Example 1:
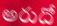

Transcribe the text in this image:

అరుదో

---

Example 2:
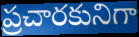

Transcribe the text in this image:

ప్రచారకునిగా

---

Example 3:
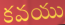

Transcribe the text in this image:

కవయు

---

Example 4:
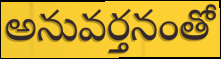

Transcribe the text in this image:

అనువర్తనంతో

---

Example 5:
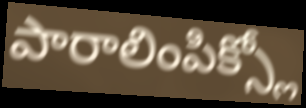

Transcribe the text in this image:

పారాలింపిక్స్లో